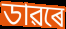
ডাৱৰে